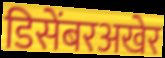
डिसेंबरअखेर